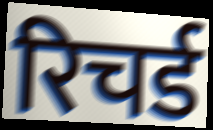
रिचर्ड